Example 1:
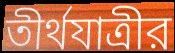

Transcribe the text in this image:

তীর্থযাত্রীর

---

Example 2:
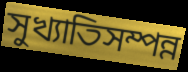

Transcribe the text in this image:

সুখ্যাতিসম্পন্ন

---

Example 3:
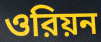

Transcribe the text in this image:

ওরিয়ন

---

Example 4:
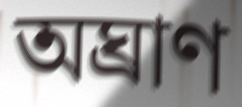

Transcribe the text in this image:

অঘ্রাণ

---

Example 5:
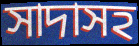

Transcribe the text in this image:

সাদাসহ